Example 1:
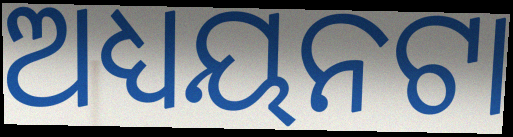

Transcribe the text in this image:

ଅଧ୍ୟୟନଟା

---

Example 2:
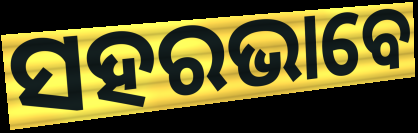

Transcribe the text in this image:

ସହରଭାବେ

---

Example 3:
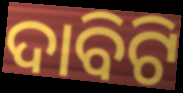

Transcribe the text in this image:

ଦାବିଟି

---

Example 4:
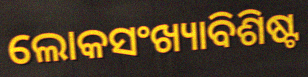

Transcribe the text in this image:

ଲୋକସଂଖ୍ୟାବିଶିଷ୍ଟ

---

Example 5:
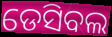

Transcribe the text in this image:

ଡେସିବଲ